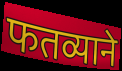
फतव्याने